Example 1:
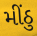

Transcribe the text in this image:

મીંઠુ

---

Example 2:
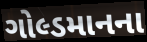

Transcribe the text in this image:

ગોલ્ડમાનના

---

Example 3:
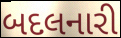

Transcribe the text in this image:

બદલનારી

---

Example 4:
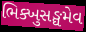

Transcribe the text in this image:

ભિક્ખુસઙ્ઘમેવ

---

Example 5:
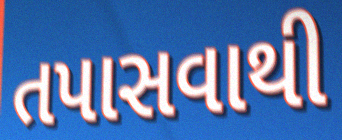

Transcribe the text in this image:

તપાસવાથી